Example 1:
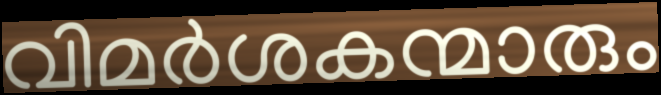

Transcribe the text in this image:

വിമർശകന്മാരും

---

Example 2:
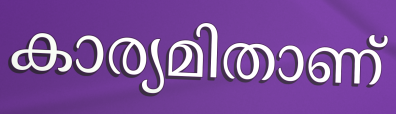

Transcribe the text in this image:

കാര്യമിതാണ്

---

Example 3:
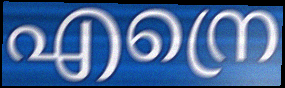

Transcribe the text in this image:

എന്രെ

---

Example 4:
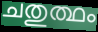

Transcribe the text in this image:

ചതുത്ഥം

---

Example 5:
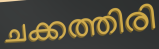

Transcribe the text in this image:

ചക്കത്തിരി